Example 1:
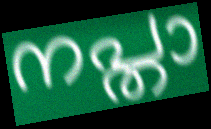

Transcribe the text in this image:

നപ്താ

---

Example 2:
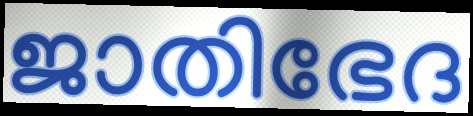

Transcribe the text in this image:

ജാതിഭേദ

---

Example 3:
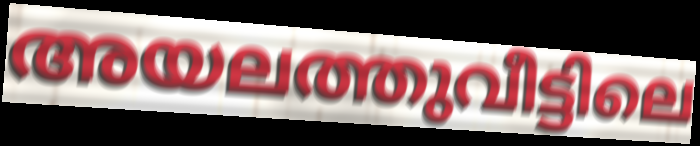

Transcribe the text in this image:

അയലത്തുവീട്ടിലെ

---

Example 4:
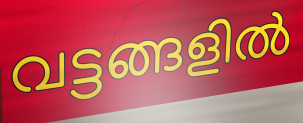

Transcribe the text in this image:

വട്ടങ്ങളിൽ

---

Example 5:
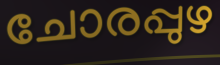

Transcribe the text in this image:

ചോരപ്പുഴ